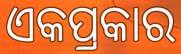
ଏକପ୍ରକାର